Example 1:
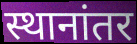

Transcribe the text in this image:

स्थानांतर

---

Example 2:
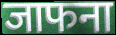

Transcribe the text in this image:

जाफना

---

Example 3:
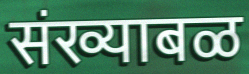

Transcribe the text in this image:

संख्याबळ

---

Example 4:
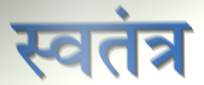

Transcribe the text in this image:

स्‍वतंत्र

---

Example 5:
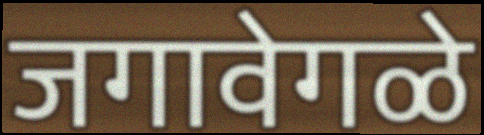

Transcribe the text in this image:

जगावेगळे